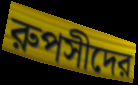
রুপসীদের